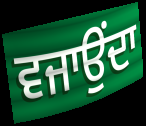
ਵਜਾਉਂਦਾ